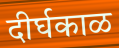
दीर्घकाळ